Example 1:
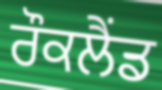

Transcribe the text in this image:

ਰੌਕਲੈਂਡ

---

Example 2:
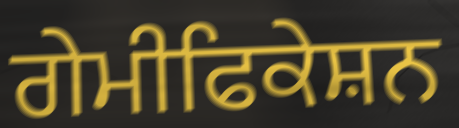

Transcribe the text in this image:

ਗੇਮੀਫਿਕੇਸ਼ਨ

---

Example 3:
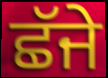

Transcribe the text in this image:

ਛੱਜੇ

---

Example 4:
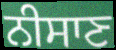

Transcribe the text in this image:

ਨੀਸਾਣ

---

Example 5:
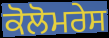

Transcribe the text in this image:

ਕੋਲੋਮਰੇਸ